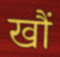
खौं